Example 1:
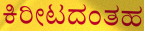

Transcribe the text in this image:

ಕಿರೀಟದಂತಹ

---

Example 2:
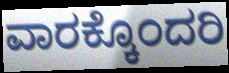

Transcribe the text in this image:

ವಾರಕ್ಕೊಂದರಿ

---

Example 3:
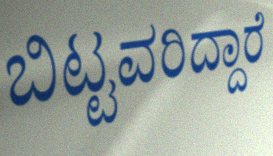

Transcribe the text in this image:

ಬಿಟ್ಟವರಿದ್ದಾರೆ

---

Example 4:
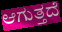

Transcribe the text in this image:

ಆಗುತ್ತದೆ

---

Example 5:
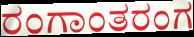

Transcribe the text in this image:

ರಂಗಾಂತರಂಗ